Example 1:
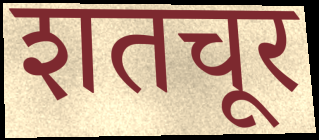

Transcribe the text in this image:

शतचूर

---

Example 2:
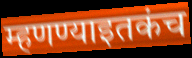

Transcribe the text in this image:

म्हणण्याइतकंच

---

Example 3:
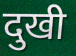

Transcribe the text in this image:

दुखी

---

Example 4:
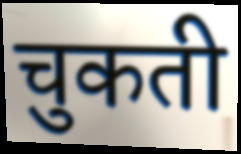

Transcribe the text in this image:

चुकती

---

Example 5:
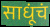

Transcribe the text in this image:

साधूंचं